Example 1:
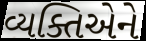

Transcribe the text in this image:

વ્યક્તિએને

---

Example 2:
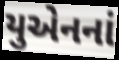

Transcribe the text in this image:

યુએનનાં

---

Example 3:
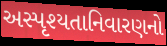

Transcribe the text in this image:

અસ્પૃશ્યતાનિવારણનો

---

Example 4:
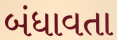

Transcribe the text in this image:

બંધાવતા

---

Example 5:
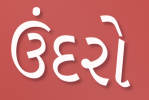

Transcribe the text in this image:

ઉંદરો